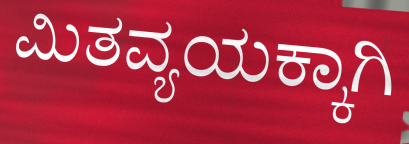
ಮಿತವ್ಯಯಕ್ಕಾಗಿ